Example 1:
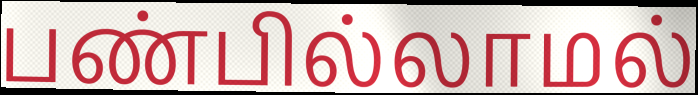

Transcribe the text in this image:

பண்பில்லாமல்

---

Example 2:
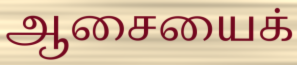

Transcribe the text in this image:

ஆசையைக்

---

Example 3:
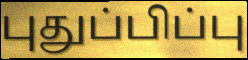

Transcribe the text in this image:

புதுப்பிப்பு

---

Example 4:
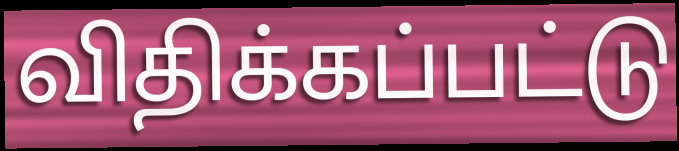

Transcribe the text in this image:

விதிக்கப்பட்டு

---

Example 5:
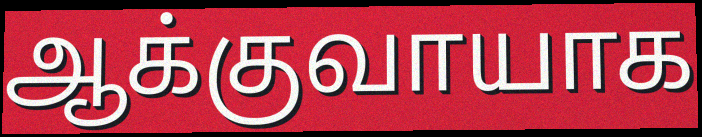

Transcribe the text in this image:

ஆக்குவாயாக